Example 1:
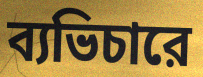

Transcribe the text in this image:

ব্যভিচারে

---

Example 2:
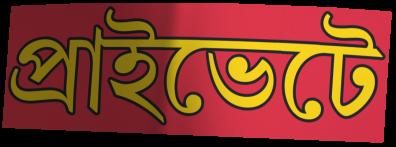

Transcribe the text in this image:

প্রাইভেটে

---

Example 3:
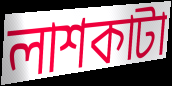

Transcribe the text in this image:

লাশকাটা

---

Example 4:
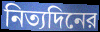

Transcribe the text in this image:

নিত্যদিনের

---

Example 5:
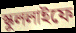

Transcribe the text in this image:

স্কুললাইফে